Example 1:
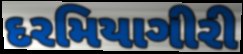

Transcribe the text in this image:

દરમિયાગીરી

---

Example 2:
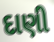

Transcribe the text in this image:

દાણી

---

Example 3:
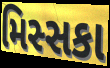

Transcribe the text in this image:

મિસ્સકા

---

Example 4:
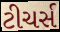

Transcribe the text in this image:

ટીચર્સ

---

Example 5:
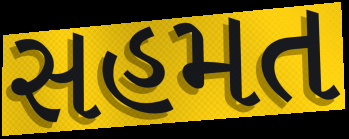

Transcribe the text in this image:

સહમત